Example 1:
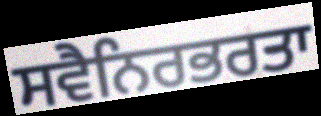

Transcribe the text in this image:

ਸਵੈਨਿਰਭਰਤਾ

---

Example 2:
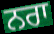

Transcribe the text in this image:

ਨਰਾ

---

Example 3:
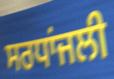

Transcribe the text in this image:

ਸਰਧਾਂਜਲੀ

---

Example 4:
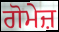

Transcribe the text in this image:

ਗੋਮੇਜ਼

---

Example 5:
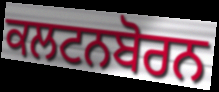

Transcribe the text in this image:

ਕਲਟਨਬੋਰਨ